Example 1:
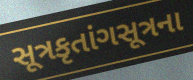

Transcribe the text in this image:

સૂત્રકૃતાંગસૂત્રના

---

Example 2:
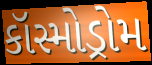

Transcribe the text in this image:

કૉસ્મોડ્રોમ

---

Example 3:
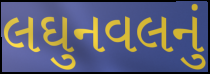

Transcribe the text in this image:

લઘુનવલનું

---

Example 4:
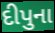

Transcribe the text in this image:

દીપુના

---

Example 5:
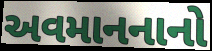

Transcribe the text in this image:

અવમાનનાનો